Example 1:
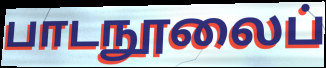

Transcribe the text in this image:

பாடநூலைப்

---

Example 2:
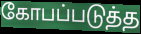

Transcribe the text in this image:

கோபப்படுத்த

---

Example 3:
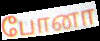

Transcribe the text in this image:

போனா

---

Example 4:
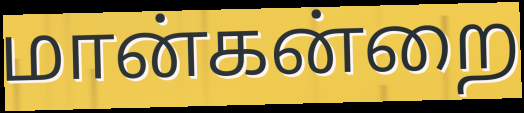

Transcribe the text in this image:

மான்கன்றை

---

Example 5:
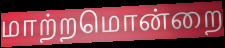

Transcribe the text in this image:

மாற்றமொன்றை